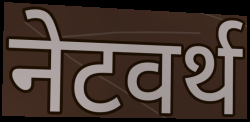
नेटवर्थ